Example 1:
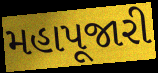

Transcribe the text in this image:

મહાપૂજારી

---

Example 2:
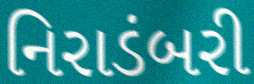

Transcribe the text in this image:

નિરાડંબરી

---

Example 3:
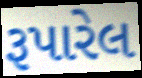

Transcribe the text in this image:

રૂપારેલ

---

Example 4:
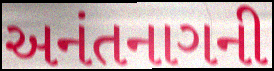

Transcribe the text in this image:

અનંતનાગની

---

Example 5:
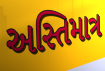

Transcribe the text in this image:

અસ્તિમાત્ર